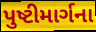
પુષ્ટીમાર્ગના